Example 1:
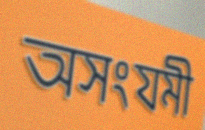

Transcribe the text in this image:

অসংযমী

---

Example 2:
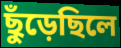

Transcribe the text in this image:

ছুঁড়েছিলে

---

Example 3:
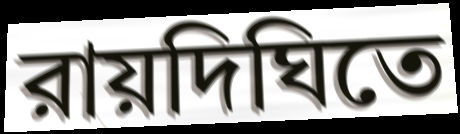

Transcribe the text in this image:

রায়দিঘিতে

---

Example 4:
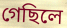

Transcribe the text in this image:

গেছিলে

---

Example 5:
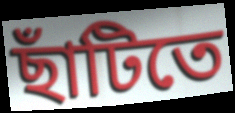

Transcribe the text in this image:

ছাঁটিতে